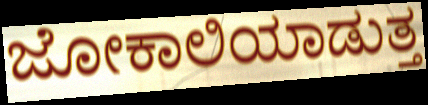
ಜೋಕಾಲಿಯಾಡುತ್ತ